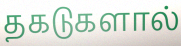
தகடுகளால்